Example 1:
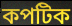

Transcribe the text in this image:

কপটিক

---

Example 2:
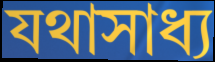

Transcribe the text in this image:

যথাসাধ্য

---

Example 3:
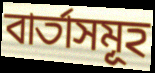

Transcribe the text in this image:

বাৰ্তাসমূহ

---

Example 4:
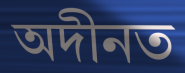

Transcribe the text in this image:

অদীনত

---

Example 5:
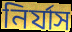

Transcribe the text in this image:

নিৰ্যাস